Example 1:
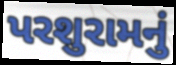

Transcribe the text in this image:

પરશુરામનું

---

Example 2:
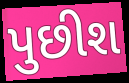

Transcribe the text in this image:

પુછીશ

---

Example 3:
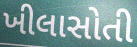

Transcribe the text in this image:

ખીલાસોતી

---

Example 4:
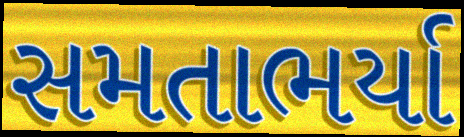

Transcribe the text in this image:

સમતાભર્યા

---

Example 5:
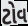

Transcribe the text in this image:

ટોવ